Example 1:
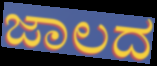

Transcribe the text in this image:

ಜಾಲದ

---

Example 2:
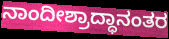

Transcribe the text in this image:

ನಾಂದೀಶ್ರಾದ್ಧಾನಂತರ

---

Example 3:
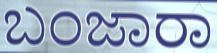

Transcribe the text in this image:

ಬಂಜಾರಾ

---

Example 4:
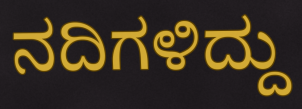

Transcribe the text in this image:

ನದಿಗಳಿದ್ದು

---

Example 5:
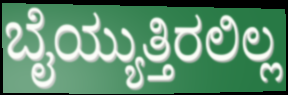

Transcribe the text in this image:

ಬೈಯ್ಯುತ್ತಿರಲಿಲ್ಲ